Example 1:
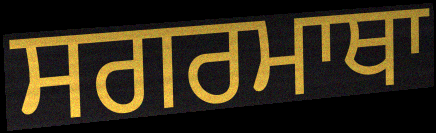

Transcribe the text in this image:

ਸਗਰਮਾਥਾ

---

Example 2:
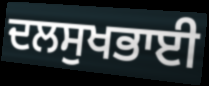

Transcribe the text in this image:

ਦਲਸੁਖਭਾਈ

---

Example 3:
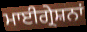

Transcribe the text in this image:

ਮਾਈਗ੍ਰੇਸ਼ਨਾਂ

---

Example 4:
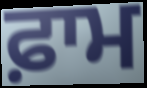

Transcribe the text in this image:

ਫ਼ਾਮ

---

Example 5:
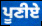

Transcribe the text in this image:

ਪੂਣੀਏ